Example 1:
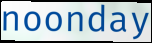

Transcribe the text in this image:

noonday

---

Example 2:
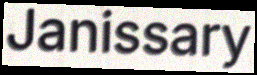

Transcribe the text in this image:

Janissary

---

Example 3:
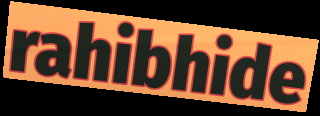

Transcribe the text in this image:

rahibhide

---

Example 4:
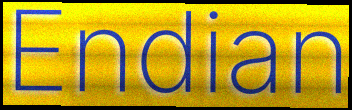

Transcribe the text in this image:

Endian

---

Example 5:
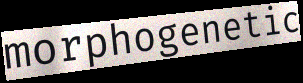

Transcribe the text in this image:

morphogenetic